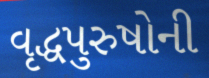
વૃદ્ધપુરુષોની